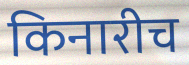
किनारीच